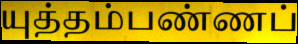
யுத்தம்பண்ணப்